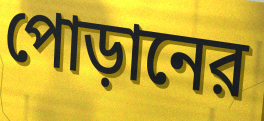
পোড়ানের